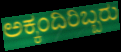
ಅಕ್ಕಂದಿರಿಬ್ಬರು